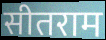
सीतराम